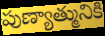
పుణ్యాత్మునికి